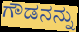
ಗೌಡನನ್ನು